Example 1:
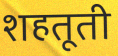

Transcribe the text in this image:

शहतूती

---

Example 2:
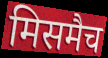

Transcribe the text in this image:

मिसमैच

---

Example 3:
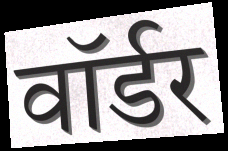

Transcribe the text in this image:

वॉर्डर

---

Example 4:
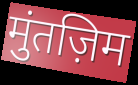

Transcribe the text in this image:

मुंतज़िम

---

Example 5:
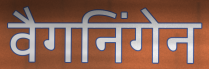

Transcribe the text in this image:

वैगनिंगेन